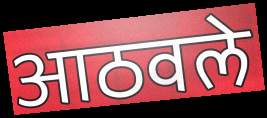
आठवले